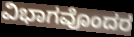
ವಿಭಾಗವೊಂದರ